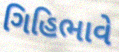
ગિહિભાવે